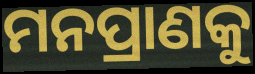
ମନପ୍ରାଣକୁ